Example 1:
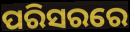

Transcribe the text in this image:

ପରିସରରେ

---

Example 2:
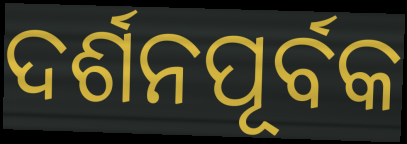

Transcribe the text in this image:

ଦର୍ଶନପୂର୍ବକ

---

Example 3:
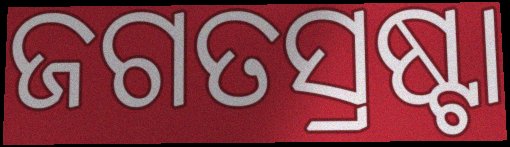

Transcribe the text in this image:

ଜଗତସ୍ରଷ୍ଟା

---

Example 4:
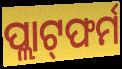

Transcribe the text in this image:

ପ୍ଲାଟ୍‌ଫର୍ମ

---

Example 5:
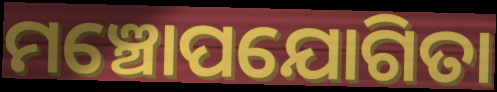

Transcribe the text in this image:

ମଞ୍ଚୋପଯୋଗିତା